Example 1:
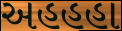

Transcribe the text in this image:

અહહહા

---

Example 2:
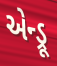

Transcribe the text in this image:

એન્ડ્રૂ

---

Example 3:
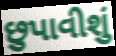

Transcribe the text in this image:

છુપાવીશું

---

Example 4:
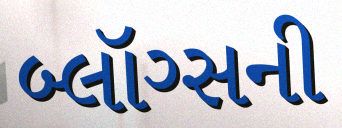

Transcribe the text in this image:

બ્લૉગ્સની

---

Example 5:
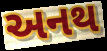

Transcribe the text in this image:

અનથ